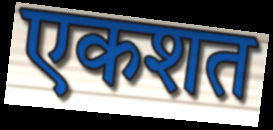
एकशत